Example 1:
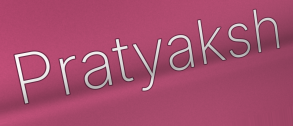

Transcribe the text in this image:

Pratyaksh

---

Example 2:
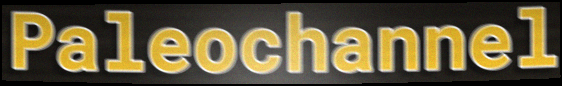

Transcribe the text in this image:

Paleochannel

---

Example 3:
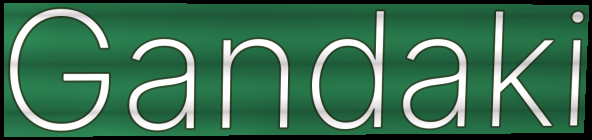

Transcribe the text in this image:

Gandaki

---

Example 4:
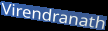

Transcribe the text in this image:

Virendranath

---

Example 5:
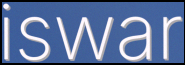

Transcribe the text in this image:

iswar